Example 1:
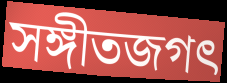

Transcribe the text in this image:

সঙ্গীতজগৎ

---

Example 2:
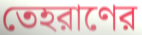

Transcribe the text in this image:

তেহরাণের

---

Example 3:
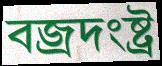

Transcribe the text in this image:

বজ্রদংষ্ট্র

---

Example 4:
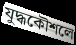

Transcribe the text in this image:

যুদ্ধকৌশলে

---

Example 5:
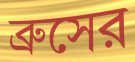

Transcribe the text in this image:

ব্রুসের